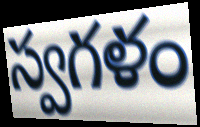
స్వగళం